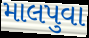
માલપુવા